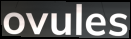
ovules